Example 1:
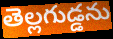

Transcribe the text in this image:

తెల్లగుడ్డను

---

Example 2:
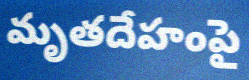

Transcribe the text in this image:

మృతదేహంపై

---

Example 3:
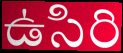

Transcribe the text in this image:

ఉసిరి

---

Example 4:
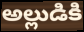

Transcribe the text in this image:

అల్లుడికి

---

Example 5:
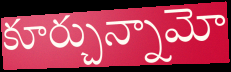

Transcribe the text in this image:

కూర్చున్నామో